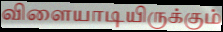
விளையாடியிருக்கும்